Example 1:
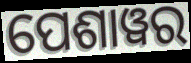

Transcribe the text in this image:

ପେଶାୱର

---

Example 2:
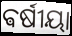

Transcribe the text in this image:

ଵର୍ଷୀୟା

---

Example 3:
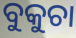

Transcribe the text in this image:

ବୁକୁଚା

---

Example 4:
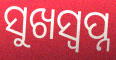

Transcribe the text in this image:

ସୁଖସ୍ୱପ୍ନ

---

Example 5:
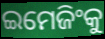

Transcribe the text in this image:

ଇମେଜିଂକୁ